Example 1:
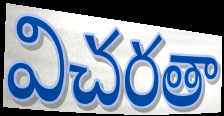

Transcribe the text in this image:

విచరతా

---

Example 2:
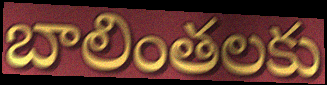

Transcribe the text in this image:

బాలింతలకు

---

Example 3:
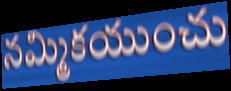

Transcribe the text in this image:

నమ్మికయుంచు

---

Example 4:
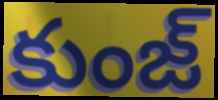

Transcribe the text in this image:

కుంజ్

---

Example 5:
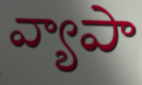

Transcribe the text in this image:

వ్యాపా